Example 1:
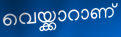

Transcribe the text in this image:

വെയ്ക്കാറാണ്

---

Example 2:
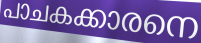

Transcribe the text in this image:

പാചകക്കാരനെ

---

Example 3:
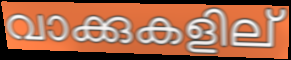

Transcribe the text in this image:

വാക്കുകളില്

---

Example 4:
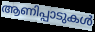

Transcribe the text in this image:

ആണിപ്പാടുകൾ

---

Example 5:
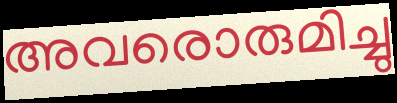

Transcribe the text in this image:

അവരൊരുമിച്ചു